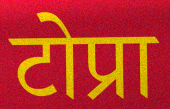
टोप्रा